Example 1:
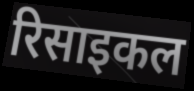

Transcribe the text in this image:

रिसाइकल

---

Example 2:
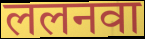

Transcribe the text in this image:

ललनवा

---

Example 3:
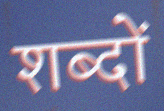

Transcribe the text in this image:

शब्दों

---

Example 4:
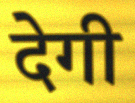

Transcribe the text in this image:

देगी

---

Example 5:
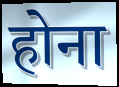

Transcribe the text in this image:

होना